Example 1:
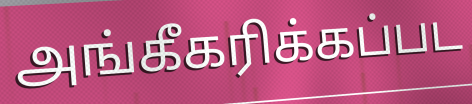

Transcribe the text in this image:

அங்கீகரிக்கப்பட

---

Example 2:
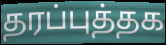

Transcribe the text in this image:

தரப்புத்தக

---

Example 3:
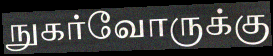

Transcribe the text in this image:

நுகர்வோருக்கு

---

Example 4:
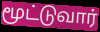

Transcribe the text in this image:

மூட்டுவார்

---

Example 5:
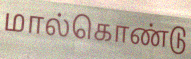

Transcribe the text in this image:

மால்கொண்டு